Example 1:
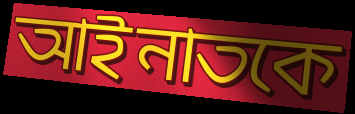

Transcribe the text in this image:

আইনাতকে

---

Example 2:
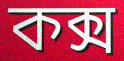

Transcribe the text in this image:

কক্স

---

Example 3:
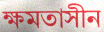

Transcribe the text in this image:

ক্ষমতাসীন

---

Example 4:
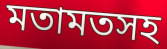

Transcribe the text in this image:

মতামতসহ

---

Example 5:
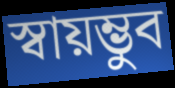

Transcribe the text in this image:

স্বায়ম্ভুব